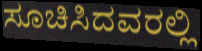
ಸೂಚಿಸಿದವರಲ್ಲಿ